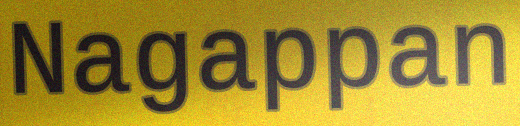
Nagappan